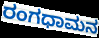
ರಂಗಧಾಮನ